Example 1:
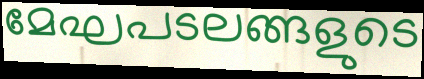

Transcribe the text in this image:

മേഘപടലങ്ങളുടെ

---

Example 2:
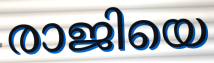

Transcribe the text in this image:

രാജിയെ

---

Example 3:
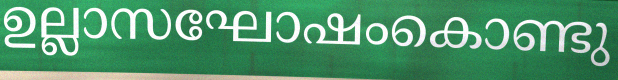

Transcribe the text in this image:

ഉല്ലാസഘോഷംകൊണ്ടു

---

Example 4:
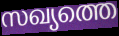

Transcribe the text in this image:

സഖ്യത്തെ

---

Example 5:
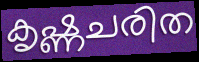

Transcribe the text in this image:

കൃഷ്ണചരിത